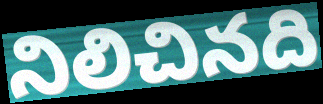
నిలిచినది